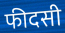
फीदसी